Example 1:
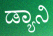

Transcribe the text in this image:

ಡ್ಯಾನಿ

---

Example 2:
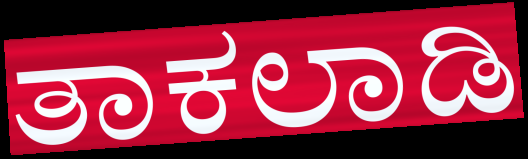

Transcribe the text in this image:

ತಾಕಲಾಡಿ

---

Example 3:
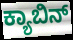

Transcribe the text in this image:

ಕ್ಯಾಬಿನ್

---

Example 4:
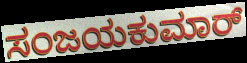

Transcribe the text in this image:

ಸಂಜಯಕುಮಾರ್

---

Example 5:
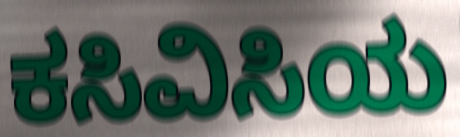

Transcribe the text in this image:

ಕಸಿವಿಸಿಯ